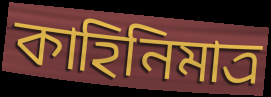
কাহিনিমাত্র